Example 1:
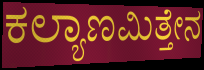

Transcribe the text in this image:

ಕಲ್ಯಾಣಮಿತ್ತೇನ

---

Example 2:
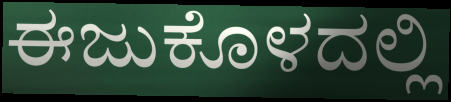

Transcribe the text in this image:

ಈಜುಕೊಳದಲ್ಲಿ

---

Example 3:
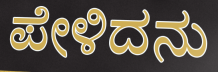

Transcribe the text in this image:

ಪೇಳಿದನು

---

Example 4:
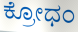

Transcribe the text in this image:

ಕ್ರೋಧಂ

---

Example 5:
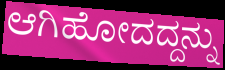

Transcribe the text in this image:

ಆಗಿಹೋದದ್ದನ್ನು